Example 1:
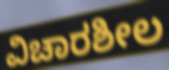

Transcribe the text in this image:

ವಿಚಾರಶೀಲ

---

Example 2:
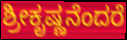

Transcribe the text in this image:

ಶ್ರೀಕೃಷ್ಣನೆಂದರೆ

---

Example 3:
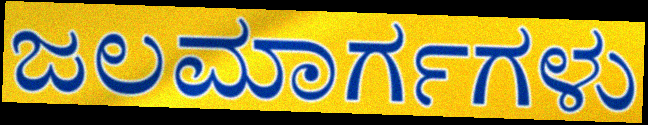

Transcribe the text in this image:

ಜಲಮಾರ್ಗಗಳು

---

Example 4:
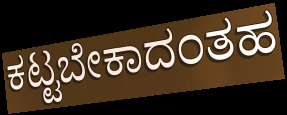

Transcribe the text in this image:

ಕಟ್ಟಬೇಕಾದಂತಹ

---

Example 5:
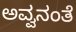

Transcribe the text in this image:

ಅವ್ವನಂತೆ